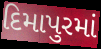
દિમાપુરમાં